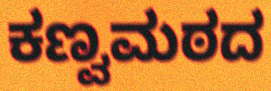
ಕಣ್ವಮಠದ